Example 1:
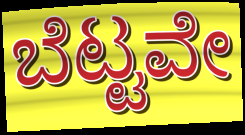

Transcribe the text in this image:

ಬೆಟ್ಟವೇ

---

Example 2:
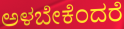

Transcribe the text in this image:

ಅಳಬೇಕೆಂದರೆ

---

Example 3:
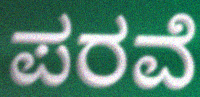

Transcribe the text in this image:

ಪರವೆ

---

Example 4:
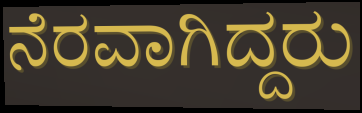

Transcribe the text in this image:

ನೆರವಾಗಿದ್ದರು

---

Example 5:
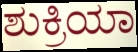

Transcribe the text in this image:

ಶುಕ್ರಿಯಾ